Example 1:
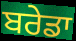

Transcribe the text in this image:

ਬਰੇਡਾ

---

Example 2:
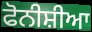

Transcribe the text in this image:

ਫੋਨੀਸ਼ੀਆ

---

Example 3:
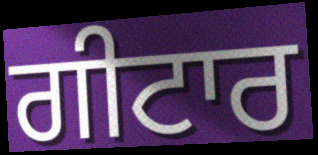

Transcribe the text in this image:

ਗੀਟਾਰ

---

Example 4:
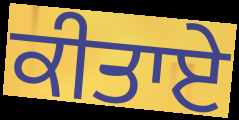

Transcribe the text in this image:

ਕੀਤਾਏ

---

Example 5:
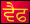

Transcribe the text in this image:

ਵੈਫ